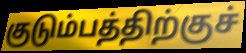
குடும்பத்திற்குச்